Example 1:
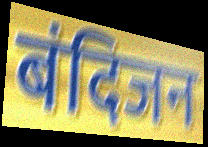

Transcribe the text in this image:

बंदिजन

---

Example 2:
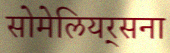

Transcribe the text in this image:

सोमेलियर्सना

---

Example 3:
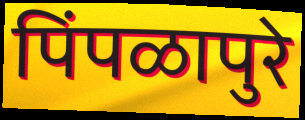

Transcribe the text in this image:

पिंपळापुरे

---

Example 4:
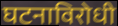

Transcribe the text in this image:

घटनाविरोधी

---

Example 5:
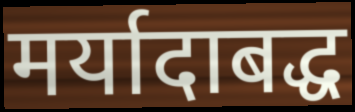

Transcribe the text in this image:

मर्यादाबद्ध